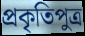
প্রকৃতিপুত্র